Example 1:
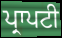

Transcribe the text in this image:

ਪ੍ਰਾਪਟੀ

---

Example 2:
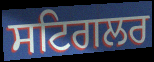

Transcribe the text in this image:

ਸਟਿਗਲਰ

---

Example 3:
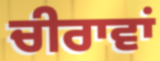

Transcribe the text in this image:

ਚੀਰਾਵਾਂ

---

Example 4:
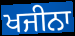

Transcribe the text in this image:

ਖਜੀਨਾ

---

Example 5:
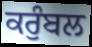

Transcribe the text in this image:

ਕਰੁੰਬਲ